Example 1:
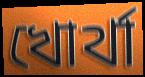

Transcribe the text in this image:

খোৰ্থা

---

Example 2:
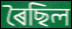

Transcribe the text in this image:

ৰৈছিল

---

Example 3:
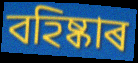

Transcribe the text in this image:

বহিষ্কাৰ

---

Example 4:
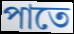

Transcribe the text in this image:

পাতে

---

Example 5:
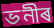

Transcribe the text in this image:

ভনীৰ